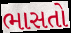
ભાસતો